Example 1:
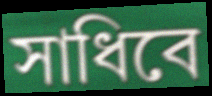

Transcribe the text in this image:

সাধিবে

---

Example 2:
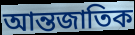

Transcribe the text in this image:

আন্তজাতিক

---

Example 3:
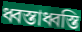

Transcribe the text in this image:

ধ্বস্তাধ্বস্তি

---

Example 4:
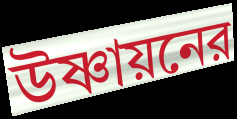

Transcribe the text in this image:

উষ্ণায়নের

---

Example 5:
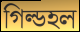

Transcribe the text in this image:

গিল্ডহল